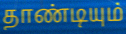
தாண்டியும்